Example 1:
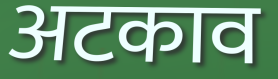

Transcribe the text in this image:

अटकाव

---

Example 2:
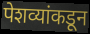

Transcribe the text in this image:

पेशव्यांकडून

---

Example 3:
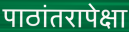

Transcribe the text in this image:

पाठांतरापेक्षा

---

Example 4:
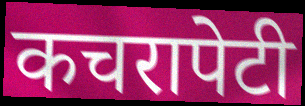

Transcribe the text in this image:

कचरापेटी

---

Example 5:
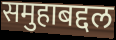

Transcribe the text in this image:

समुहाबद्दल